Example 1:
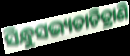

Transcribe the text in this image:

ସିନ୍ଧୁସଭ୍ୟତାଚିତ୍ରାଣି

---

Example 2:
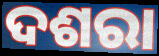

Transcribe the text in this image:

ଦଶରା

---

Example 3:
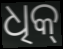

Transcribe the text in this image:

ଧିକ୍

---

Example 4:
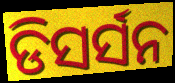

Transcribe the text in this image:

ଡିସର୍ସନ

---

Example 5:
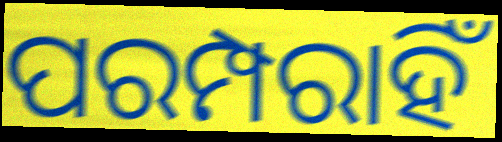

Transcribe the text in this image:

ପରମ୍ପରାହିଁ